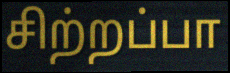
சிற்றப்பா